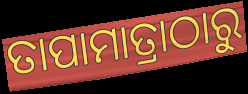
ତାପାମାତ୍ରାଠାରୁ